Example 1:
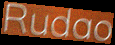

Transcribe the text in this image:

Rudao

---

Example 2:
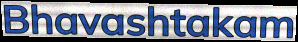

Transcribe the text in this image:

Bhavashtakam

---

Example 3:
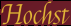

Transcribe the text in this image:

Hochst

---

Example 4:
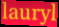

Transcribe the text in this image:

lauryl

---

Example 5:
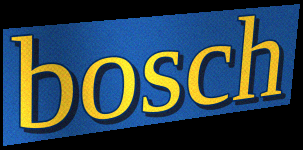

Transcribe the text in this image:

bosch